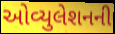
ઓવ્યુલેશનની